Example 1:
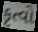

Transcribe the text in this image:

કૃત્વો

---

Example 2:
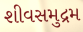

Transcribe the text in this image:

શીવસમુદ્રમ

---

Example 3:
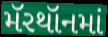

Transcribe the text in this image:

મૅરથૉનમાં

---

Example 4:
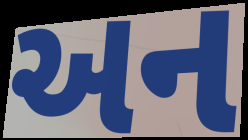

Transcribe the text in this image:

અન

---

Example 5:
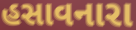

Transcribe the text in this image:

હસાવનારા